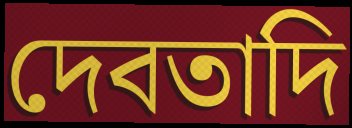
দেবতাদি